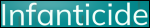
Infanticide